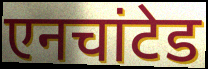
एनचांटेड